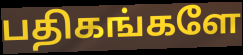
பதிகங்களே